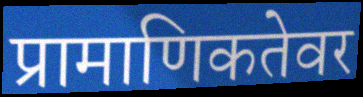
प्रामाणिकतेवर